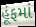
હૂંફમાં